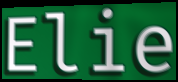
Elie